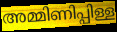
അമ്മിണിപ്പിള്ള